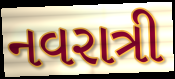
નવરાત્રી